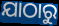
ଯାଠାରୁ